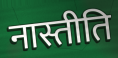
नास्तीति